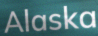
Alaska